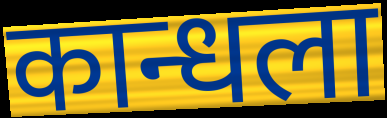
कान्धला